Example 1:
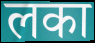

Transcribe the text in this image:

लका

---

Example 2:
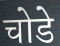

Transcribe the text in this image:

चोडे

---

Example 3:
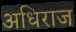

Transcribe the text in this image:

अधिराज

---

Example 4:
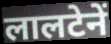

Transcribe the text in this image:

लालटेनें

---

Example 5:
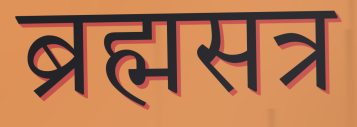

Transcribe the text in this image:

ब्रह्मसत्र